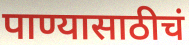
पाण्यासाठीचं